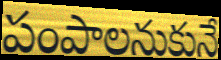
పంపాలనుకునే